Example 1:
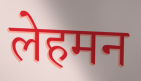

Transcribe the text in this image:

लेहमन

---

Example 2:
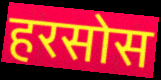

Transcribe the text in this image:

हरसोस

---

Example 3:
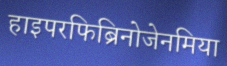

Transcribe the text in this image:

हाइपरफिब्रिनोजेनमिया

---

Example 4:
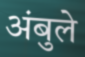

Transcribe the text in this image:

अंबुले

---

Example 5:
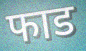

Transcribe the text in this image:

फाड